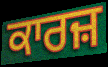
ਕਾਰਜ਼